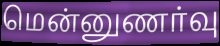
மென்னுணர்வு